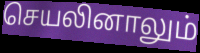
செயலினாலும்